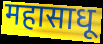
महासाधू